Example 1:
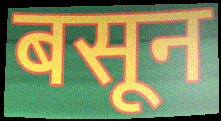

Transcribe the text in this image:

बसून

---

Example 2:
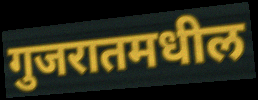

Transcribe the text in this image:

गुजरातमधील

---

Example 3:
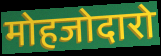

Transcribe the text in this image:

मोहजोदारो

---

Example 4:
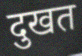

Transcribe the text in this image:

दुखत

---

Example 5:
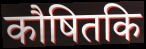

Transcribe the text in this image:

कौषितकि